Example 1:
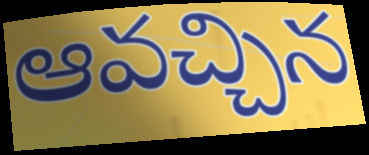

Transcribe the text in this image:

ఆవచ్చిన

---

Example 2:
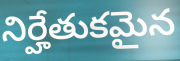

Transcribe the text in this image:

నిర్హేతుకమైన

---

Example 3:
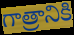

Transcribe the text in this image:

గాత్రానికి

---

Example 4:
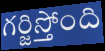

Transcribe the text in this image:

గర్జిస్తోంది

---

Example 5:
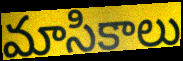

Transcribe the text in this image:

మాసికాలు